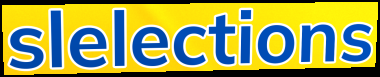
slelections